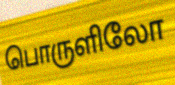
பொருளிலோ